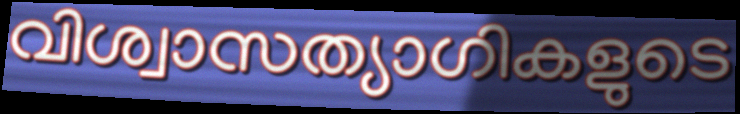
വിശ്വാസത്യാഗികളുടെ